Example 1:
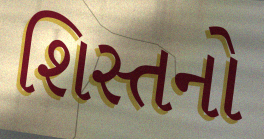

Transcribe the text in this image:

શિસ્તનો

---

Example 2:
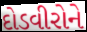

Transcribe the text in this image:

દોડવીરોને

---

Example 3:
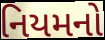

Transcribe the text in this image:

નિયમનો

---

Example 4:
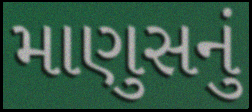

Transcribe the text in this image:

માણુસનું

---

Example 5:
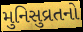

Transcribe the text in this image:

મુનિસુવ્રતનો